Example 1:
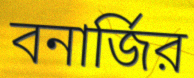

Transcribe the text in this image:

বনার্জির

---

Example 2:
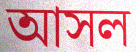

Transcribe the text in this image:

আসল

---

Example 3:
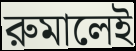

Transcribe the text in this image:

রুমালেই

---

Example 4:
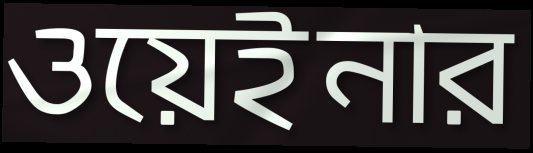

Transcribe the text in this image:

ওয়েইনার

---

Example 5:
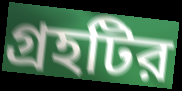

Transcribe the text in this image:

গ্রহটির